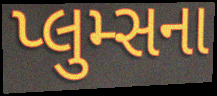
પ્લુમ્સના